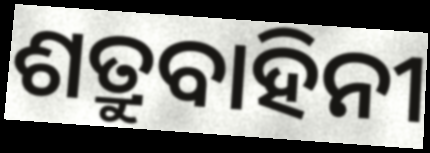
ଶତ୍ରୁବାହିନୀ